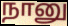
நானு